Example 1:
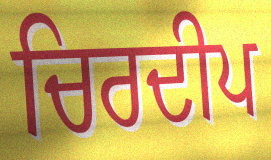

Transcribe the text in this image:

ਚਿਰਦੀਪ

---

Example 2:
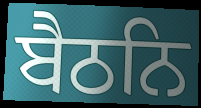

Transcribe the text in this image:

ਬੈਠਨਿ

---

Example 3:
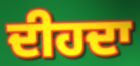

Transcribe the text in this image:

ਦੀਹਦਾ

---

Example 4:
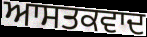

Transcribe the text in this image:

ਆਸਤਕਵਾਦ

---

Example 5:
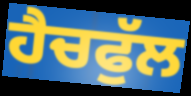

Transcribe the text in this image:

ਹੈਚਫੁੱਲ